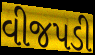
વીજપડી